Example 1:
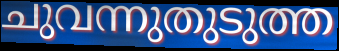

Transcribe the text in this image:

ചുവന്നുതുടുത്ത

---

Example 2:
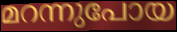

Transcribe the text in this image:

മറന്നുപോയ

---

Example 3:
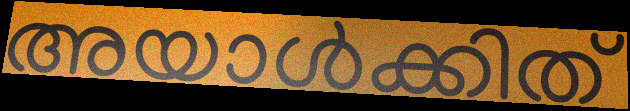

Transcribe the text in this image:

അയാൾക്കിത്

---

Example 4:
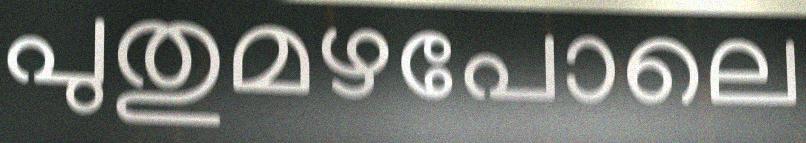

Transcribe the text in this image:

പുതുമഴപോലെ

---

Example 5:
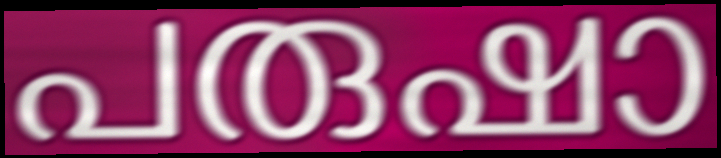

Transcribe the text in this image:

പരുഷാ